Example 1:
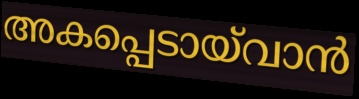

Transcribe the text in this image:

അകപ്പെടായ്‌വാൻ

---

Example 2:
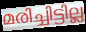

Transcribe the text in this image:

മരിച്ചിട്ടില്ല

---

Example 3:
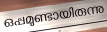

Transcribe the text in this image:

ഒപ്പമുണ്ടായിരുന്നു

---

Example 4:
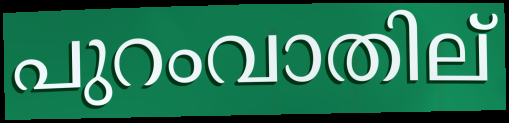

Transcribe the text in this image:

പുറംവാതില്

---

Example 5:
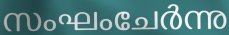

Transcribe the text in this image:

സംഘംചേർന്നു